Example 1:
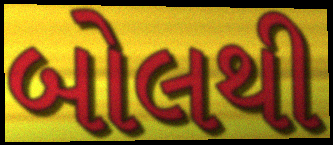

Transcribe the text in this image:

બોલથી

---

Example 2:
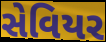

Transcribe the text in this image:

સેવિયર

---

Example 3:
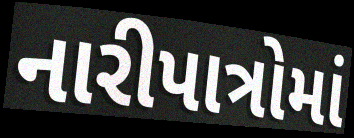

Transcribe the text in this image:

નારીપાત્રોમાં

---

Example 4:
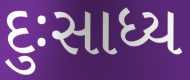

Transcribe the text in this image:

દુઃસાધ્ય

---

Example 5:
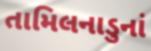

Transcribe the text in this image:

તામિલનાડુનાં